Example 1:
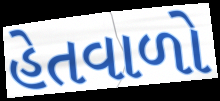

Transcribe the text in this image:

હેતવાળો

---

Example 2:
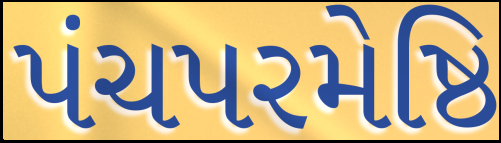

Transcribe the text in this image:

પંચપરમેષ્ઠિ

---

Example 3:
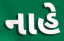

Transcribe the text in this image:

નાહે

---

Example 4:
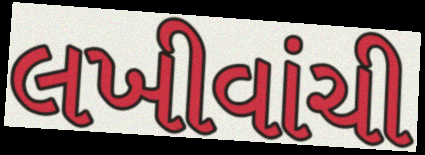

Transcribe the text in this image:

લખીવાંચી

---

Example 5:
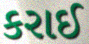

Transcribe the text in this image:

કરાઈ